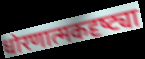
धोरणात्मकदृष्ट्या